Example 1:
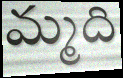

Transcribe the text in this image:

మ్మది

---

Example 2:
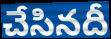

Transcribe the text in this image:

చేసినదీ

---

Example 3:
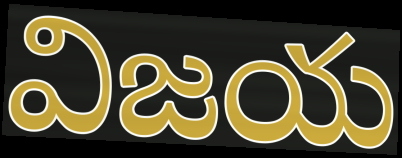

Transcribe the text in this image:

విజయ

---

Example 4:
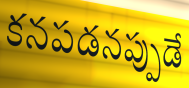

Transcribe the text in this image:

కనపడనప్పుడే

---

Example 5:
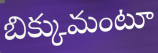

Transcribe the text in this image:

బిక్కుమంటూ